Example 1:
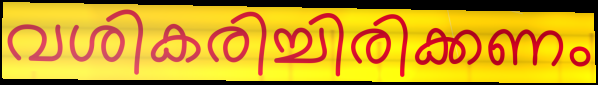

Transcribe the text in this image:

വശികരിച്ചിരിക്കണം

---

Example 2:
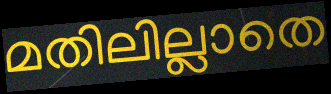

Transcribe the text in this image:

മതിലില്ലാതെ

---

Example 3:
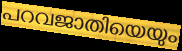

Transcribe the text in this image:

പറവജാതിയെയും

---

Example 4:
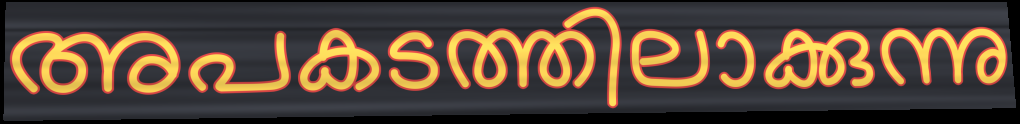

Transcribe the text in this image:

അപകടത്തിലാക്കുന്നു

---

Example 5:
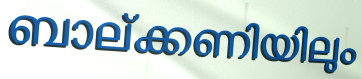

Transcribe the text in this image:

ബാല്ക്കണിയിലും